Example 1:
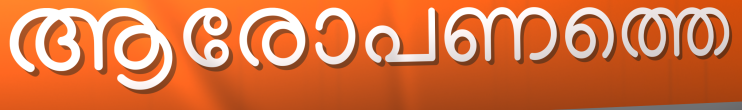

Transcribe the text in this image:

ആരോപണത്തെ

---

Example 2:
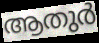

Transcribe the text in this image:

ആതുർ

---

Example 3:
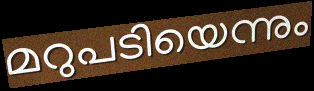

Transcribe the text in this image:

മറുപടിയെന്നും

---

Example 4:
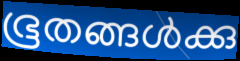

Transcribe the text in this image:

ഭൂതങ്ങൾക്കു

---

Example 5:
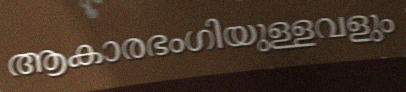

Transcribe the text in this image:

ആകാരഭംഗിയുള്ളവളും